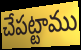
చేపట్టాము